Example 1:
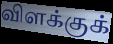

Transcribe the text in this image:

விளக்குக்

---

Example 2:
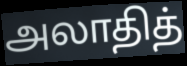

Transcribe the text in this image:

அலாதித்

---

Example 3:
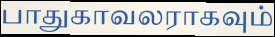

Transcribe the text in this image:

பாதுகாவலராகவும்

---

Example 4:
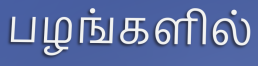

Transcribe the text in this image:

பழங்களில்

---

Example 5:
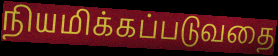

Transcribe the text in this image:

நியமிக்கப்படுவதை